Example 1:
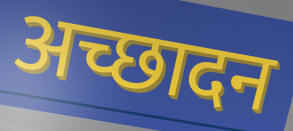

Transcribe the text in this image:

अच्छादन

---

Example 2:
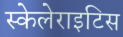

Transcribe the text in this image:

स्केलेराइटिस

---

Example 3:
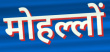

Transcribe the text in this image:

मोहल्लों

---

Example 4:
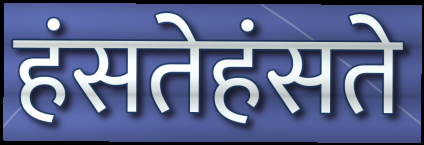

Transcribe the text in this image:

हंसतेहंसते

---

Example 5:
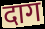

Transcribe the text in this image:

दाग